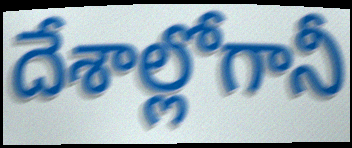
దేశాల్లోగానీ